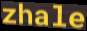
zhale